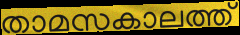
താമസകാലത്ത്